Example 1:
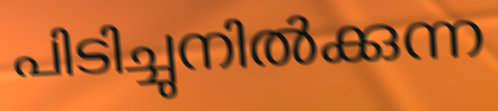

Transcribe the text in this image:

പിടിച്ചുനിൽക്കുന്ന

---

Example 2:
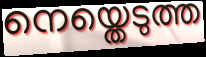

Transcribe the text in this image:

നെയ്തെടുത്ത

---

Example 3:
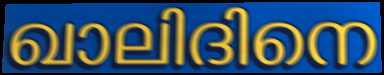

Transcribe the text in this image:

ഖാലിദിനെ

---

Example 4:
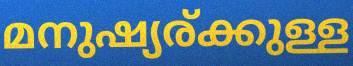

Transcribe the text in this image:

മനുഷ്യര്ക്കുള്ള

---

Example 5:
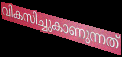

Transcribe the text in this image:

വികസിച്ചുകാണുന്നത്